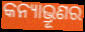
କନ୍ୟାଭ୍ରୂଣର